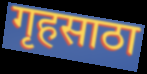
गृहसाठा